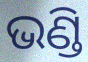
ଭଣ୍ଡି